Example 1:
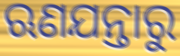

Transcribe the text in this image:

ଋଣଯନ୍ତାରୁ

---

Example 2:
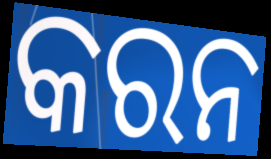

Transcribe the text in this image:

କରନ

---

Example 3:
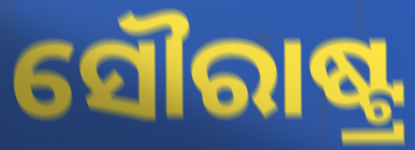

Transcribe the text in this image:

ସୌରାଷ୍ଟ୍ର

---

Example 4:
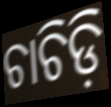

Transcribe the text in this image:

ଚାଚିଡ଼ି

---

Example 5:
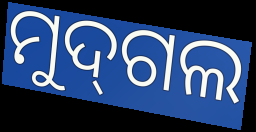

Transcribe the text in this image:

ମୁଦ୍‌ଗଲ